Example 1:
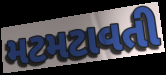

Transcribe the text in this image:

મટમટાવતી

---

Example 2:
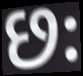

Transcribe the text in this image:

છઃ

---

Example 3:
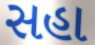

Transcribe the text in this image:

સહા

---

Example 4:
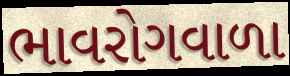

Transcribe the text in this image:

ભાવરોગવાળા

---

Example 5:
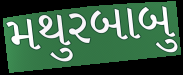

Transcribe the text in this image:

મથુરબાબુ